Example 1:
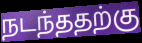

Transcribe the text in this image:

நடந்ததற்கு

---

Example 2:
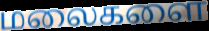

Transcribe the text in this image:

மலைகளை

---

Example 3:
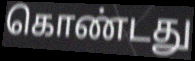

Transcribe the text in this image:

கொண்டது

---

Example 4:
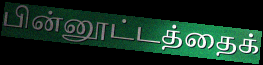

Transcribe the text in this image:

பின்னூட்டத்தைக்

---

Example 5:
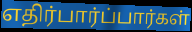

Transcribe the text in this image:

எதிர்பார்ப்பார்கள்